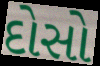
દોસો